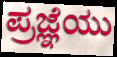
ಪ್ರಜ್ಞೆಯು